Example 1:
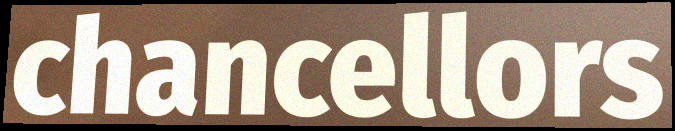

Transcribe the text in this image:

chancellors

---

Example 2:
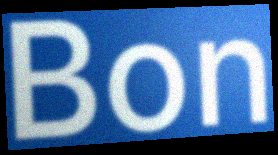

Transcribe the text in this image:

Bon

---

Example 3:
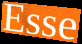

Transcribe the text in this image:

Esse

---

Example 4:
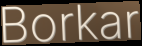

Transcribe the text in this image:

Borkar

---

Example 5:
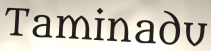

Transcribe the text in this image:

Taminadu